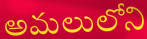
అమలులోని